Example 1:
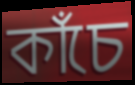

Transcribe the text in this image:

কাঁচে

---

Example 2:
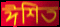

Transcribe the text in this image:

ঈশিত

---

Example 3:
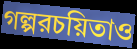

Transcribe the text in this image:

গল্পরচয়িতাও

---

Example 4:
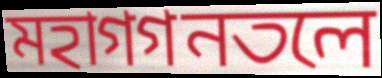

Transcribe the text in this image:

মহাগগনতলে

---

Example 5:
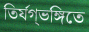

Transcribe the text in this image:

তির্যগ্ভঙ্গিতে